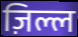
ज़िल्ल